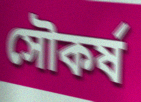
সৌকর্ষ